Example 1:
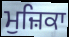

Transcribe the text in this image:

ਮੁਜ਼ਿਕਾ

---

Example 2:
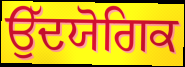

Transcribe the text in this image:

ਉੱਦਯੋਗਿਕ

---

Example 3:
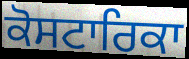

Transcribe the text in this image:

ਕੋਸਟਾਰਿਕਾ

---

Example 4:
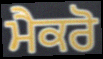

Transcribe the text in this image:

ਮੈਕਰੋ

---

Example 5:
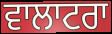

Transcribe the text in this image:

ਵਾਲਾਟਰਾ